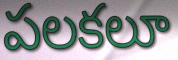
పలకలూ